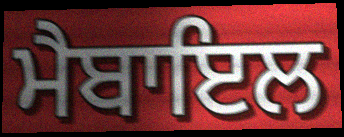
ਮੈਬਾਇਲ